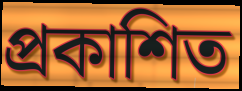
প্রকাশিত